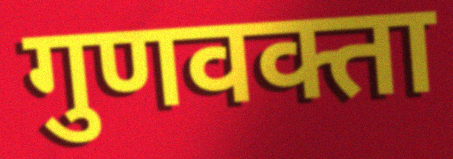
गुणवक्ता